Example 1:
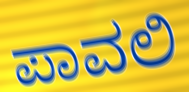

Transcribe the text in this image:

ಪಾವಲಿ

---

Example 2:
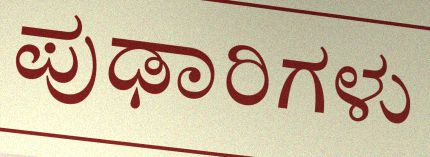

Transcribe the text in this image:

ಪುಢಾರಿಗಳು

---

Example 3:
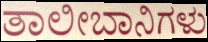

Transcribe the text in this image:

ತಾಲೀಬಾನಿಗಳು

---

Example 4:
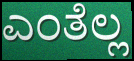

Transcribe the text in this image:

ಎಂತೆಲ್ಲ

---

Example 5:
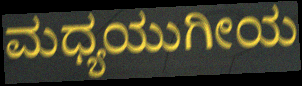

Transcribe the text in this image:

ಮಧ್ಯಯುಗೀಯ